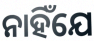
ନାହିଁଯେ